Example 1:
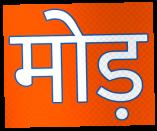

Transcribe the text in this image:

मोड़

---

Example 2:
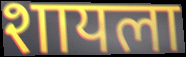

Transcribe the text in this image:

शायला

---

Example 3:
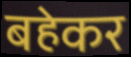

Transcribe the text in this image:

बहेकर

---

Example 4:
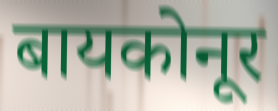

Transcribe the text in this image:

बायकोनूर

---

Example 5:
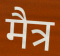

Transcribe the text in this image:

मैत्र